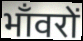
भाँवरों